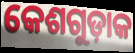
କେଶଗୁଡ଼ାକ